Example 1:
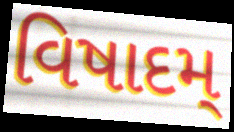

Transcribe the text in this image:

વિષાદમ્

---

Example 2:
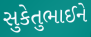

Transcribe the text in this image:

સુકેતુભાઈને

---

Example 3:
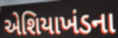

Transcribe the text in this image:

એશિયાખંડના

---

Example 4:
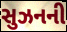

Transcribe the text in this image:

સુઝનની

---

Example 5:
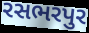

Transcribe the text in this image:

રસભરપુર